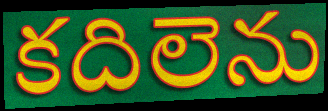
కదిలెను